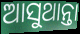
ଆସୁଥାନ୍ତା